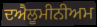
ਦਐਲੂਮੀਨੀਅਮ